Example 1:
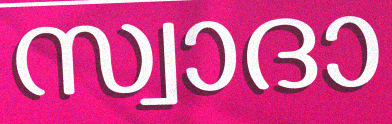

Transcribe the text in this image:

സ്വാദാ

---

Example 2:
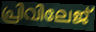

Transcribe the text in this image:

പ്രിവിലേജ്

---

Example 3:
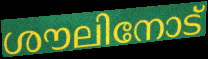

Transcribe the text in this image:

ശൗലിനോട്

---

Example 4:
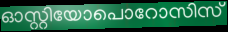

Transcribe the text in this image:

ഓസ്റ്റിയോപൊറോസിസ്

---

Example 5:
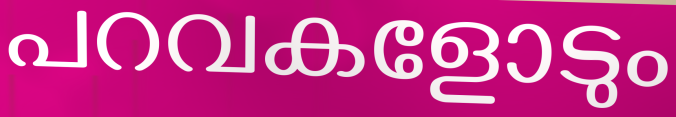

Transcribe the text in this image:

പറവകളോടും